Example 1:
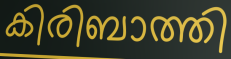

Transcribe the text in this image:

കിരിബാത്തി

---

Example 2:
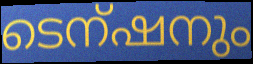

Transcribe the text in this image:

ടെന്ഷനും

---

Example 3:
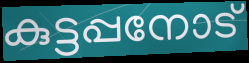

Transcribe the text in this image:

കുട്ടപ്പനോട്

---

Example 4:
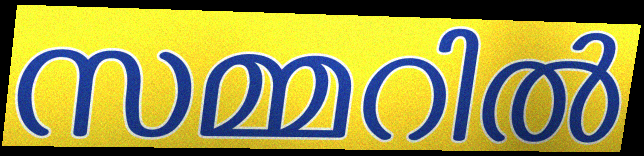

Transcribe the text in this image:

സമ്മറിൽ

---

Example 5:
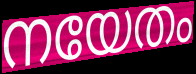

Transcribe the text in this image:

നയേതം